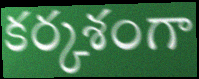
కర్కశంగా